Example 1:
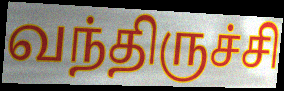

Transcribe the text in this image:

வந்திருச்சி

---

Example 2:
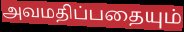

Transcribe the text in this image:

அவமதிப்பதையும்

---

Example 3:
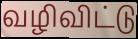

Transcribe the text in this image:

வழிவிட்டு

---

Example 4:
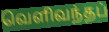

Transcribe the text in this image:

வெளிவந்தப்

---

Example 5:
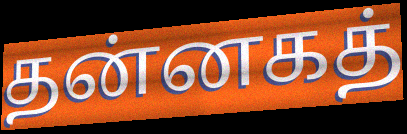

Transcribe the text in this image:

தன்னகத்